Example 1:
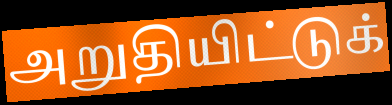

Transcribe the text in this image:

அறுதியிட்டுக்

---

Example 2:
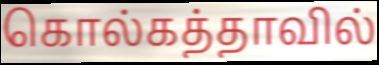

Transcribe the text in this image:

கொல்கத்தாவில்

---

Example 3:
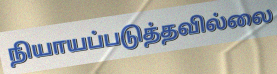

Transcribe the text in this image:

நியாயப்படுத்தவில்லை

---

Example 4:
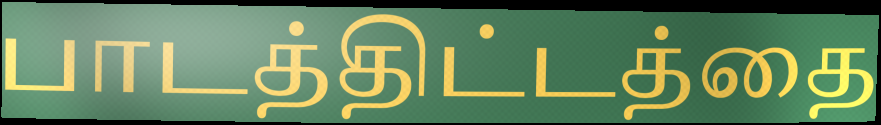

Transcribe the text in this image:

பாடத்திட்டத்தை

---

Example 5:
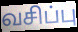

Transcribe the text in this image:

வசிப்பு